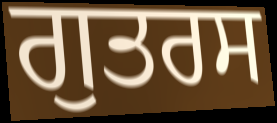
ਗੁਤਰਸ